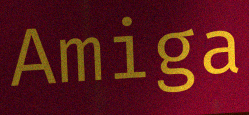
Amiga